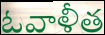
ఓవాళీత